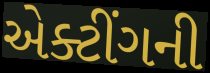
એક્ટીંગની